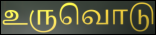
உருவொடு